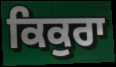
ਕਿਕੁਰਾ